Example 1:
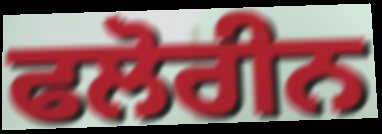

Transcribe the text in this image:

ਫਲੋਰੀਨ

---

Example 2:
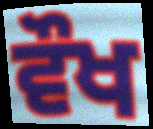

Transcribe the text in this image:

ਵੌਖ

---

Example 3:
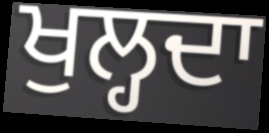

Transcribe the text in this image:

ਖੁਲ੍ਹਦਾ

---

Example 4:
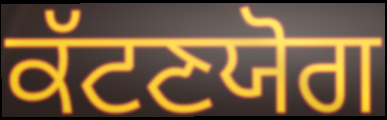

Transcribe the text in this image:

ਕੱਟਣਯੋਗ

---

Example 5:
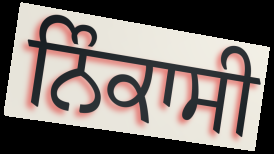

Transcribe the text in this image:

ਨਿੰਕਾਸੀ